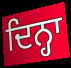
ਦਿਨ੍ਹਾ